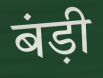
बंड़ी